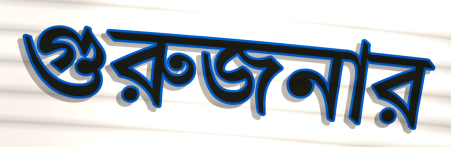
গুরুজনার